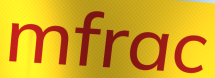
mfrac